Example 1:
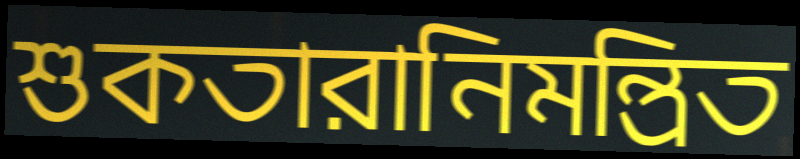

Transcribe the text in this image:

শুকতারানিমন্ত্রিত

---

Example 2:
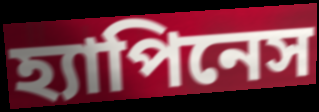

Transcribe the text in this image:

হ্যাপিনেস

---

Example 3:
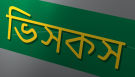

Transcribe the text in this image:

ভিসকস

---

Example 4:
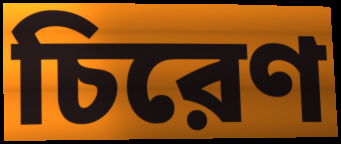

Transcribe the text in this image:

চিরেণ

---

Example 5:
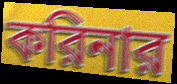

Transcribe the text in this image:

করিনার